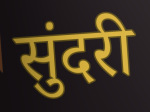
सुंदरी